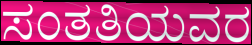
ಸಂತತಿಯವರ